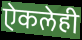
ऐकलेही